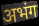
अभंग